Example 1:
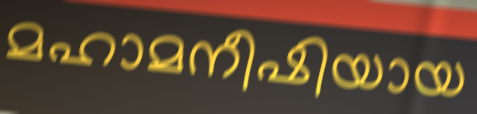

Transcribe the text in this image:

മഹാമനീഷിയായ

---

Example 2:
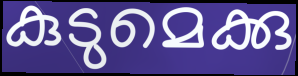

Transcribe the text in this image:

കുടുമെക്കു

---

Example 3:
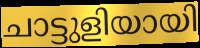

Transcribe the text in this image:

ചാട്ടുളിയായി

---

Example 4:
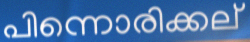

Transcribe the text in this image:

പിന്നൊരിക്കല്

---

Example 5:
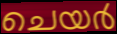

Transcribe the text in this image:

ചെയർ